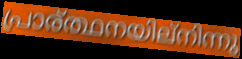
പ്രാര്ത്ഥനയില്നിന്നു